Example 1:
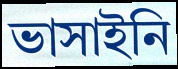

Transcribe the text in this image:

ভাসাইনি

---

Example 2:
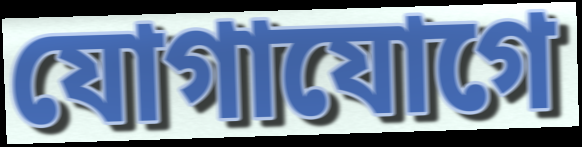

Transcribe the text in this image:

যোগাযোগে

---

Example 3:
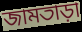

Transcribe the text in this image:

জামতাড়া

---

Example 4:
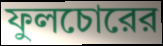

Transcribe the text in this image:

ফুলচোরের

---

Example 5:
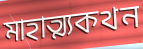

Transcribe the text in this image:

মাহাত্ম্যকথন